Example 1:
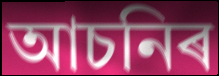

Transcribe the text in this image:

আচনিৰ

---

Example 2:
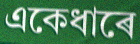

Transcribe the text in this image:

একেধাৰে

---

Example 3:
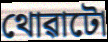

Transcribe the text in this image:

থোৱাটো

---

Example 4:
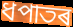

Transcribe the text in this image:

ধপাতৰ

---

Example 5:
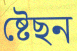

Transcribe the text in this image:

ষ্টেছন